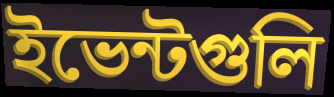
ইভেন্টগুলি